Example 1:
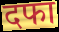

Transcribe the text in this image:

दफा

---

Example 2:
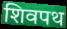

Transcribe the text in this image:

शिवपथ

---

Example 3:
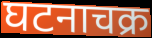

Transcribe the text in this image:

घटनाचक्र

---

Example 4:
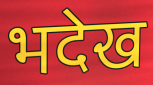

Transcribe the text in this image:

भदेख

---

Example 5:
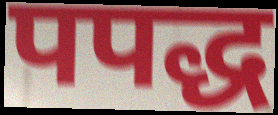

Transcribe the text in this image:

पपद्ध